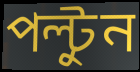
পল্টুন